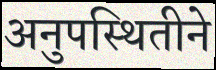
अनुपस्थितीने